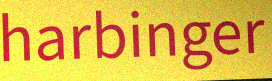
harbinger